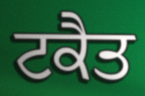
ਟਕੈਤ